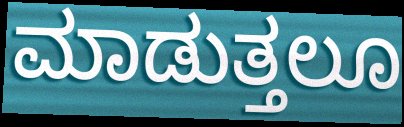
ಮಾಡುತ್ತಲೂ